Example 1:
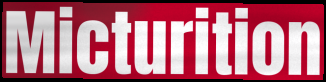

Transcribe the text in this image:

Micturition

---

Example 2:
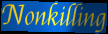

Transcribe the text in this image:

Nonkilling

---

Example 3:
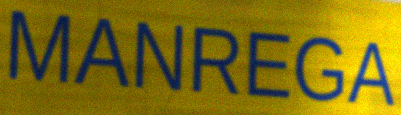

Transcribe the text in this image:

MANREGA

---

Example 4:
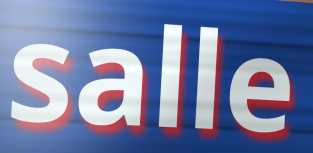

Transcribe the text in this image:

salle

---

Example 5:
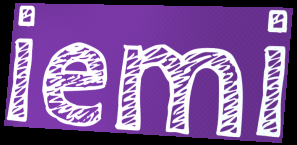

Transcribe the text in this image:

iemi